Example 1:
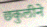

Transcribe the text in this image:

छकुलीने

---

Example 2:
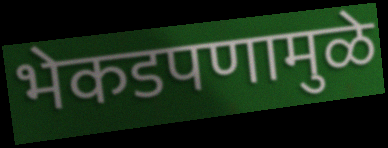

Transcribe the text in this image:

भेकडपणामुळे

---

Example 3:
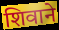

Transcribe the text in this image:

शिवाने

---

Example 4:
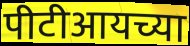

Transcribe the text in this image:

पीटीआयच्या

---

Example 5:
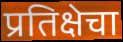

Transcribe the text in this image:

प्रतिक्षेचा